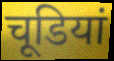
चूडियां